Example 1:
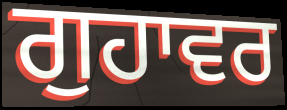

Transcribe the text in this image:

ਗੁਹਾਵਰ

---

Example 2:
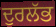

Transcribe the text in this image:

ਦੁਰਲੱਭ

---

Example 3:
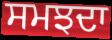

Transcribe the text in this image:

ਸਮਝਦਾ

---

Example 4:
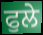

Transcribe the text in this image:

ਫੁਲੇ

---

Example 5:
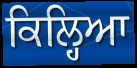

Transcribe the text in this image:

ਕਿਲ੍ਹਿਆ